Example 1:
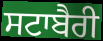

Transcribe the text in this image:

ਸਟਾਬੈਰੀ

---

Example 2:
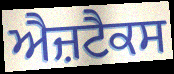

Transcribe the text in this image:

ਐਜ਼ਟੈਕਸ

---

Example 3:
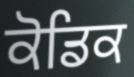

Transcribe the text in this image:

ਕੋਡਿਕ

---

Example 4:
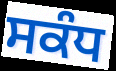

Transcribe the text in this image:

ਸਕੰਧ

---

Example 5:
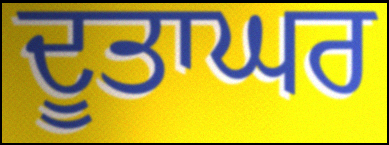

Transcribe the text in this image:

ਦੂਤਾਘਰ